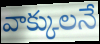
వాక్కులనే